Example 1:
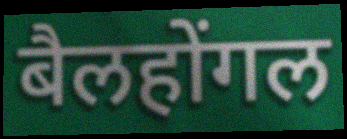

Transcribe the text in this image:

बैलहोंगल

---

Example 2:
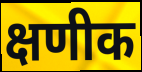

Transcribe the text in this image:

क्षणीक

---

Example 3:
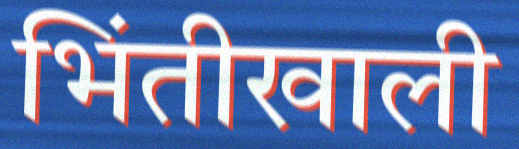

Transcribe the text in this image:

भिंतीखाली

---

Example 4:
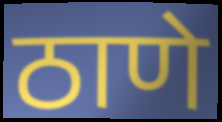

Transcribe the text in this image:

ठाणे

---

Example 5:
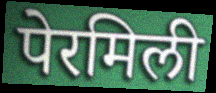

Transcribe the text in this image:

पेरमिली